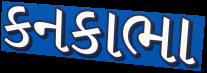
કનકાભા